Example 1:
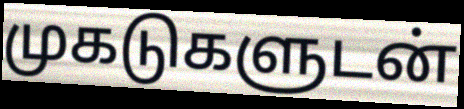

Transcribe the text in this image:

முகடுகளுடன்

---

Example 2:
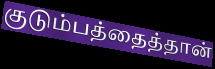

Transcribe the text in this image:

குடும்பத்தைத்தான்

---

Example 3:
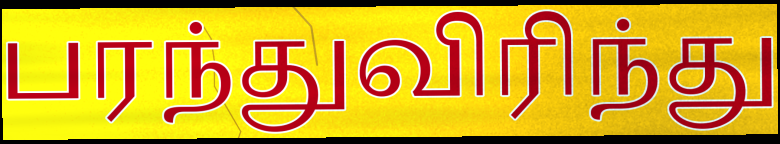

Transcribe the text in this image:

பரந்துவிரிந்து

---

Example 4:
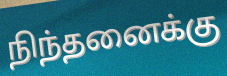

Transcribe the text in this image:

நிந்தனைக்கு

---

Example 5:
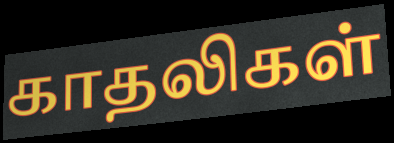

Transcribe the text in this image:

காதலிகள்